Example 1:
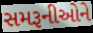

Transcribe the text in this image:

સમરૂનીઓને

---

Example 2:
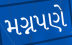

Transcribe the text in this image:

મગ્નપણે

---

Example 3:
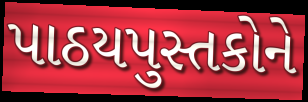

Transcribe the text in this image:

પાઠયપુસ્તકોને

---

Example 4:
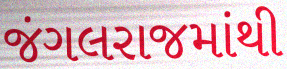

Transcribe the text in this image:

જંગલરાજમાંથી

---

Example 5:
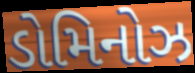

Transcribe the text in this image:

ડોમિનોઝ